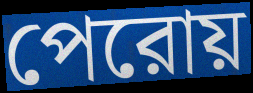
পেরোয়